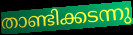
താണ്ടിക്കടന്നു